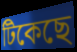
টিকেছে